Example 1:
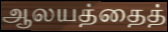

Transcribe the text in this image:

ஆலயத்தைத்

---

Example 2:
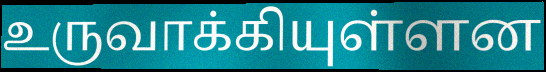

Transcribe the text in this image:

உருவாக்கியுள்ளன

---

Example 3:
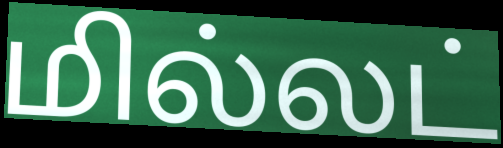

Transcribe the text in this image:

மில்லட்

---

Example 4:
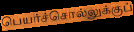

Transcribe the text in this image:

பெயர்ச்சொல்லுக்குப்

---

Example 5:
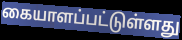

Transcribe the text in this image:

கையாளப்பட்டுள்ளது